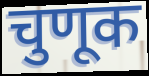
चुणूक